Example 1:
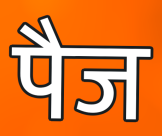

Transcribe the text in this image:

पैज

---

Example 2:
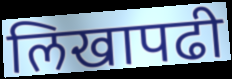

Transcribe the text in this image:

लिखापढी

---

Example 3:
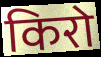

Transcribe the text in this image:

किरो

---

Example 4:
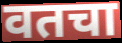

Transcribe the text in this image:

वतचा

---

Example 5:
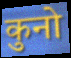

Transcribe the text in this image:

कुनो